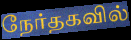
நேர்தகவில்